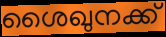
ശൈഖുനക്ക്